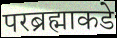
परब्रह्माकडे